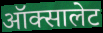
ऑक्सालेट